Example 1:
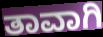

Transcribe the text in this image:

ತಾವಾಗಿ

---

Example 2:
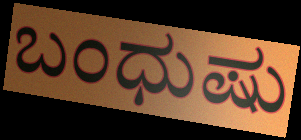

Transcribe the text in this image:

ಬಂಧುಷು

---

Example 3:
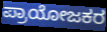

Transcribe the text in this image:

ಪ್ರಾಯೋಜಕರ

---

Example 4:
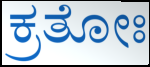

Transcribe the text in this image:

ಕ್ರತೋಃ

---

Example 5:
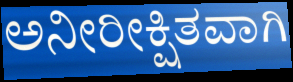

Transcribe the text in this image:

ಅನೀರೀಕ್ಷಿತವಾಗಿ